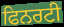
ਫਿਨਰਟੀ